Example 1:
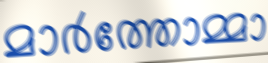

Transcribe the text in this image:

മാർത്തോമ്മാ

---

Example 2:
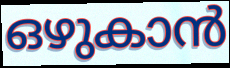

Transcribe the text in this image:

ഒഴുകാൻ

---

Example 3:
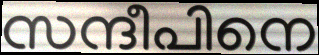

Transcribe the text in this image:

സന്ദീപിനെ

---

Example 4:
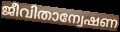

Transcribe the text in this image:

ജീവിതാന്വേഷണ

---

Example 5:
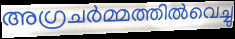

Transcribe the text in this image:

അഗ്രചർമ്മത്തിൽവെച്ചു